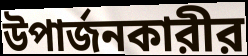
উপার্জনকারীর